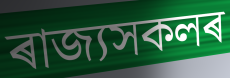
ৰাজ্যসকলৰ